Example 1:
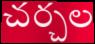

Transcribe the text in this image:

చర్చల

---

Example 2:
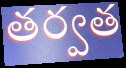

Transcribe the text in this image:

తర్వత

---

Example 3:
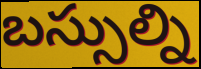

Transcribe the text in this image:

బస్సుల్ని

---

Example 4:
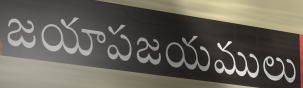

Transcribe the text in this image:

జయాపజయములు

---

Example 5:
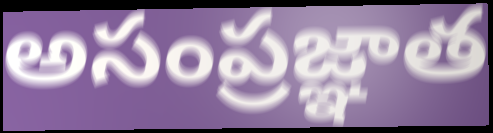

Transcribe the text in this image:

అసంప్రజ్ఞాత